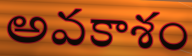
అవకాశం